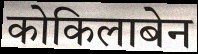
कोकिलाबेन